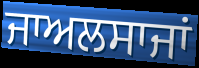
ਜਾਅਲਸਾਜਾਂ